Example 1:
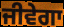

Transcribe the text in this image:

ਜੀਵੇਗਾ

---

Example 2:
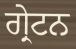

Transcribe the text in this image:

ਗ੍ਰੇਟਨ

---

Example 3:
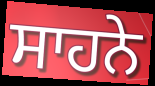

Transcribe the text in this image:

ਸਾਹਨੇ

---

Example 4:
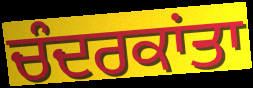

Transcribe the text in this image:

ਚੰਦਰਕਾਂਤਾ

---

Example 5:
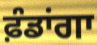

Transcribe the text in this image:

ਫ਼ੰਡਾਂਗਾ